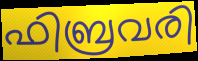
ഫിബ്രവരി